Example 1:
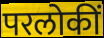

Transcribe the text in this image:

परलोकीं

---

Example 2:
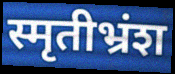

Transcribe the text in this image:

स्मृतीभ्रंश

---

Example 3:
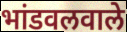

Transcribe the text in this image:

भांडवलवाले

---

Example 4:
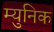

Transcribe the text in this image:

म्युनिक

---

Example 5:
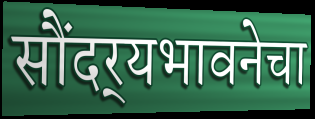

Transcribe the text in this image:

सौंदर्यभावनेचा